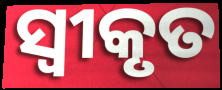
ସ୍ବୀକୃତ